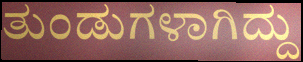
ತುಂಡುಗಳಾಗಿದ್ದು